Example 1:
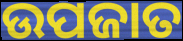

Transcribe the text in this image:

ଉପଜାତ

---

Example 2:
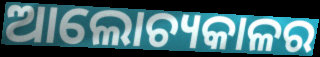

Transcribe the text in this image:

ଆଲୋଚ୍ୟକାଳର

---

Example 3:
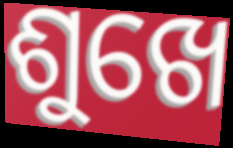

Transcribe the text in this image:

ଶୁଖେ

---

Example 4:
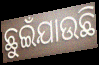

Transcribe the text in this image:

ଛୁଇଁଯାଉଛି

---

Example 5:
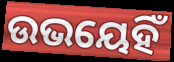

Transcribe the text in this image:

ଉଭୟେହିଁ